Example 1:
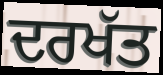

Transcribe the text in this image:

ਦਰਖੱਤ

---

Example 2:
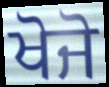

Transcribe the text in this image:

ਖੋਜੋ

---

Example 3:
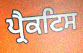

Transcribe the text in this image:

ਪ੍ਰੈਕਟਿਸ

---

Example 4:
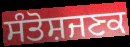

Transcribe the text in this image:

ਸੰਤੋਸ਼ਜਣਕ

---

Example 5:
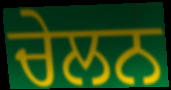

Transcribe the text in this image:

ਚੇਲਨ